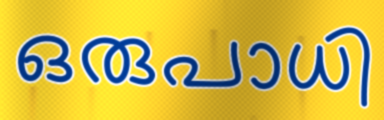
ഒരുപാധി